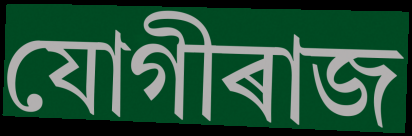
যোগীৰাজ